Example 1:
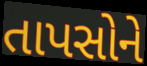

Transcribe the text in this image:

તાપસોને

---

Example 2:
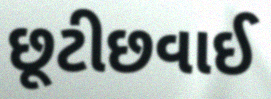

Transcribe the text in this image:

છૂટીછવાઈ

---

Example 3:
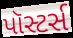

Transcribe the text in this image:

પૉસ્ટર્સ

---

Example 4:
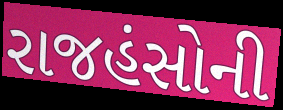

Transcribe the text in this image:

રાજહંસોની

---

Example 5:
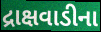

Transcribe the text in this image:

દ્રાક્ષવાડીના